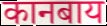
कानबाय